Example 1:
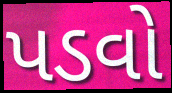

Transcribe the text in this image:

પડવો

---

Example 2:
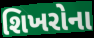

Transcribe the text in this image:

શિખરોના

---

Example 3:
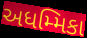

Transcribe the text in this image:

અધમ્મિકા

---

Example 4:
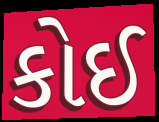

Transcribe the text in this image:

કોઈ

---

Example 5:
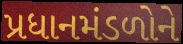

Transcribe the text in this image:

પ્રધાનમંડળોને